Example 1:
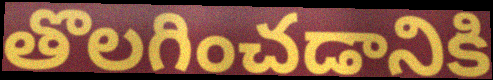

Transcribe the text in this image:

తొలగించడానికి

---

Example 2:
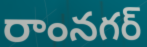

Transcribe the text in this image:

రాంనగర్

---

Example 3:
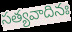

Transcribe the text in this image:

సత్యవాదినః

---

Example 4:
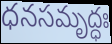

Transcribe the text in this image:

ధనసమృద్ధః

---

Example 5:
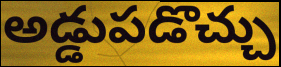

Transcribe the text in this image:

అడ్డుపడొచ్చు